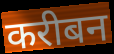
करीबन